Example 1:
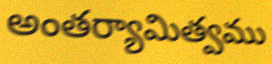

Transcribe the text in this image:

అంతర్యామిత్వము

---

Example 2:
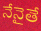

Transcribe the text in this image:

నేనైతే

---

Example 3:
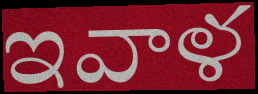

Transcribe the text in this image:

ఇవాళ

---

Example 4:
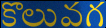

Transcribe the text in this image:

కొలువగ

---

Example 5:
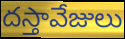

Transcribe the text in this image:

దస్తావేజులు